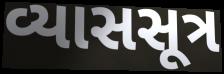
વ્યાસસૂત્ર